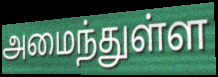
அமைந்துள்ள